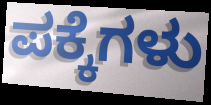
ಪಕ್ಕೆಗಳು